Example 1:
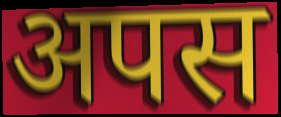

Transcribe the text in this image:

अपस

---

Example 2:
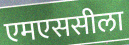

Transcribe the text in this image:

एमएससीला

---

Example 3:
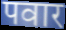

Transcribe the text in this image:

पवार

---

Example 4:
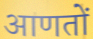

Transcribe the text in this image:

आणतों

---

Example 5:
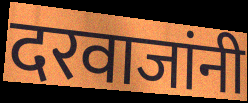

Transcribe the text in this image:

दरवाजांनी